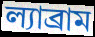
ল্যাব্রাম